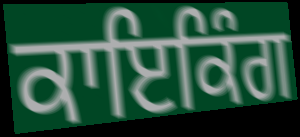
ਕਾਇਕਿੰਗ